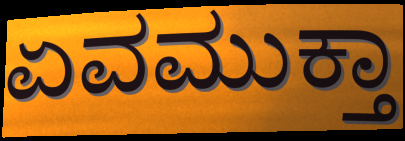
ಏವಮುಕ್ತಾ